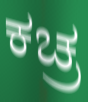
ಕಚ್ರ